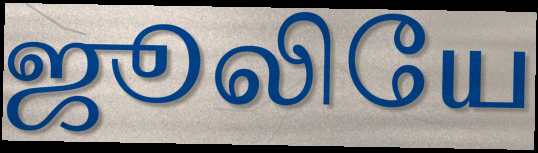
ஜூலியே